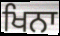
ਖਿਨਾ